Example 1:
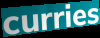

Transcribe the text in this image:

curries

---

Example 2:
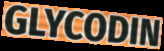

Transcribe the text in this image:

GLYCODIN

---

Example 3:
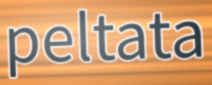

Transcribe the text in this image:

peltata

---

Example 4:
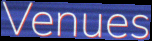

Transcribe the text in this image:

Venues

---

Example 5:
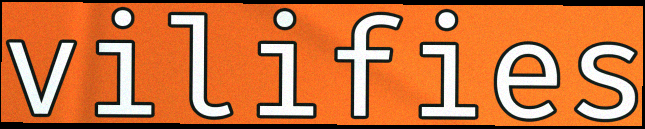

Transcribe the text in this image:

vilifies